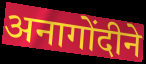
अनागोंदीने